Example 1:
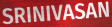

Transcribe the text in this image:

SRINIVASAN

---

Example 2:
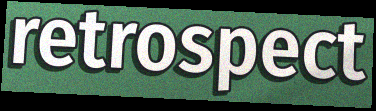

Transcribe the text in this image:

retrospect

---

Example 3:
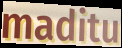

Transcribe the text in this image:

maditu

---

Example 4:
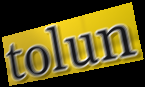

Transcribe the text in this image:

tolun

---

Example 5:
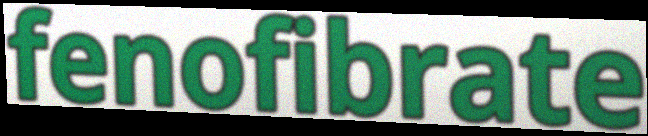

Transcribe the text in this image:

fenofibrate